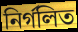
নির্গলিত